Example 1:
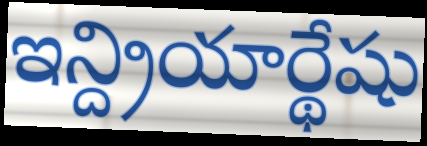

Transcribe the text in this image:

ఇన్ద్రియార్థేషు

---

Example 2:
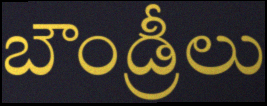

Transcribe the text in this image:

బౌండ్రీలు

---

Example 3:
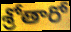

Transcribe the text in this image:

శ్రోతారో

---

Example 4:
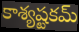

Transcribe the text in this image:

కాశ్యష్టకమ్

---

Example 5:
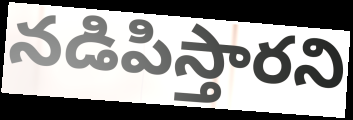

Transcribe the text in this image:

నడిపిస్తారని